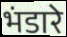
भंडारे